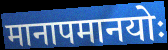
मानापमानयोः